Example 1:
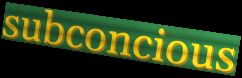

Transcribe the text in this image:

subconcious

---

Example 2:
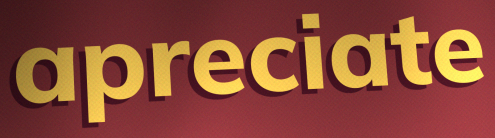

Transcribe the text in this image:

apreciate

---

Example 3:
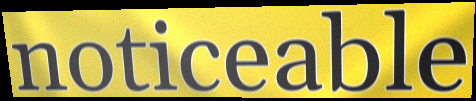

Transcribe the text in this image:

noticeable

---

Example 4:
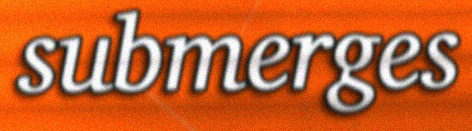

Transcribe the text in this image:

submerges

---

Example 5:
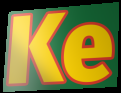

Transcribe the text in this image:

Ke